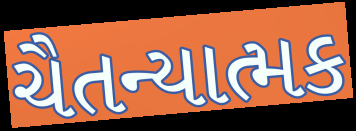
ચૈતન્યાત્મક